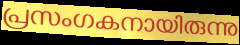
പ്രസംഗകനായിരുന്നു